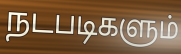
நடபடிகளும்